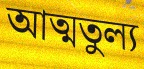
আত্মতুল্য